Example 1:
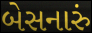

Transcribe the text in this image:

બેસનારું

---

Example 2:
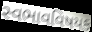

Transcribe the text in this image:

સ્વભાવવિષયક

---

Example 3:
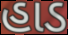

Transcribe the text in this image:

હાડ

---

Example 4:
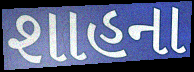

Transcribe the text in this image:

શાહના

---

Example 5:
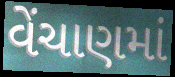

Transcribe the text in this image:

વેંચાણમાં